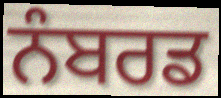
ਨੰਬਰਡ